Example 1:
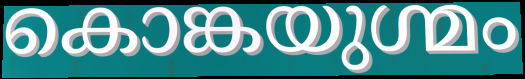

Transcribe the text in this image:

കൊങ്കയുഗ്മം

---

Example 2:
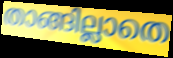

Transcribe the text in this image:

താങ്ങില്ലാതെ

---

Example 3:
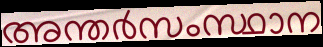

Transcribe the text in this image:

അന്തർസംസ്ഥാന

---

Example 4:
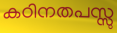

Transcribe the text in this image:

കഠിനതപസ്സു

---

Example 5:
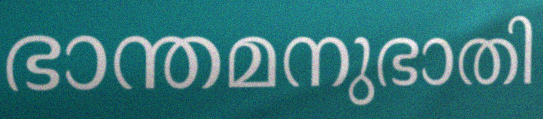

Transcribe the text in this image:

ഭാന്തമനുഭാതി